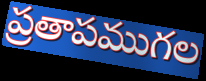
ప్రతాపముగల